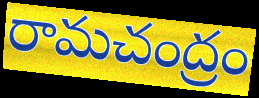
రామచంద్రం